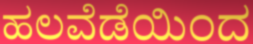
ಹಲವೆಡೆಯಿಂದ